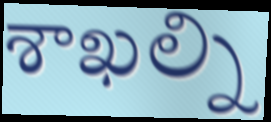
శాఖల్ని